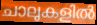
ചാലുകളിൽ